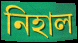
নিহাল